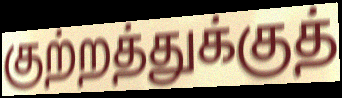
குற்றத்துக்குத்